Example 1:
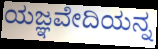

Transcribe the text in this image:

ಯಜ್ಞವೇದಿಯನ್ನ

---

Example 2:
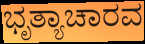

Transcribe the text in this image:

ಭೃತ್ಯಾಚಾರವ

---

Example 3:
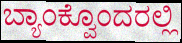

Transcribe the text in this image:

ಬ್ಯಾಂಕ್ವೊಂದರಲ್ಲಿ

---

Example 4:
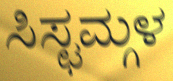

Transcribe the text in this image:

ಸಿಸ್ಟಮ್ಗಳ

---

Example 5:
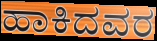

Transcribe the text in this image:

ಹಾಕಿದವರ